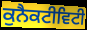
ਕੁਨੈਕਟੀਵਿਟੀ